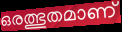
ഒരത്ഭുതമാണ്